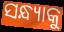
ସନ୍ଧ୍ୟାକୁ